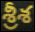
శ్రీశ